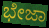
ಭೇಜಾ